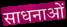
साधनाओं